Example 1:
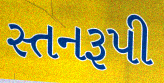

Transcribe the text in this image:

સ્તનરૂપી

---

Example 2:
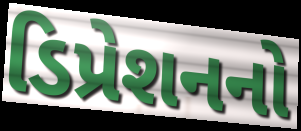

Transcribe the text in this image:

ડિપ્રેશનનો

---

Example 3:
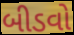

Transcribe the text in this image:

બીડવો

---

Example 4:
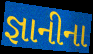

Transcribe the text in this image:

જ્ઞાનીના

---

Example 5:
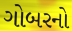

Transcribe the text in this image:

ગોબરનો